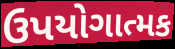
ઉપયોગાત્મક